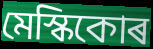
মেস্কিকোৰ